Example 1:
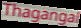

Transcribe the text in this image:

Thagangal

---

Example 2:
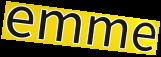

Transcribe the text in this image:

emme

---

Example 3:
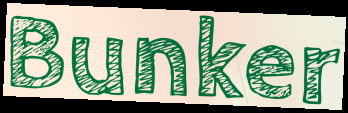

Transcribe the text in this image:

Bunker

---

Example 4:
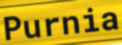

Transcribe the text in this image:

Purnia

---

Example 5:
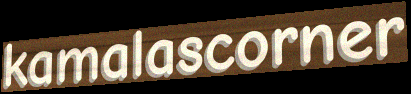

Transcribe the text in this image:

kamalascorner